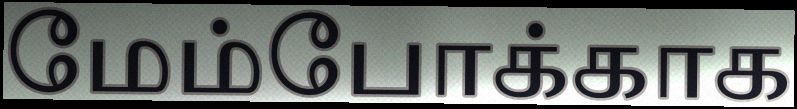
மேம்போக்காக